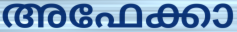
അഫേക്കാ